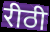
रीठी